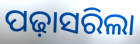
ପଢ଼ାସରିଲା